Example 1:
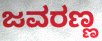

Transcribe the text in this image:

ಜವರಣ್ಣ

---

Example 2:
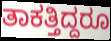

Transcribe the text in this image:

ತಾಕತ್ತಿದ್ದರೂ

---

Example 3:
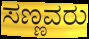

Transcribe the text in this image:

ಸಣ್ಣವರು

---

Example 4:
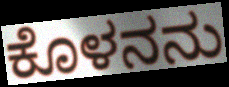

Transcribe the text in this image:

ಕೊಳನನು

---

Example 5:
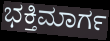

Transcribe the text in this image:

ಭಕ್ತಿಮಾರ್ಗ